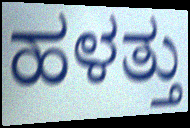
ಹಳತ್ತು